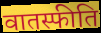
वातस्फीति